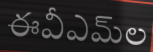
ఈవీఎమ్‌ల